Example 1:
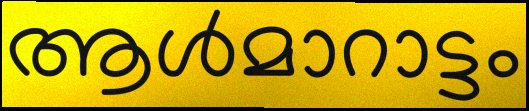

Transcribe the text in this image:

ആൾമാറാട്ടം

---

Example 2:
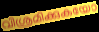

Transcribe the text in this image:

വിശ്രമിക്കുകയോ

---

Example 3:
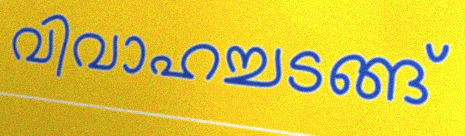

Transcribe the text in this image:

വിവാഹച്ചടങ്ങ്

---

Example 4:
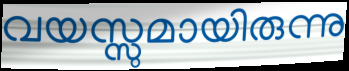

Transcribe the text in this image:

വയസ്സുമായിരുന്നു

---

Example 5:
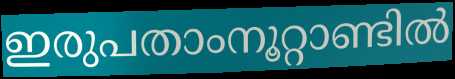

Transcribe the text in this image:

ഇരുപതാംനൂറ്റാണ്ടിൽ